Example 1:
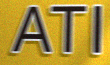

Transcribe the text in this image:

ATI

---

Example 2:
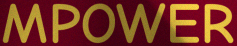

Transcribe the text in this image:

MPOWER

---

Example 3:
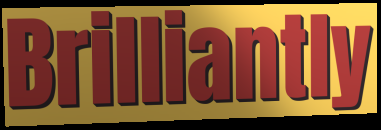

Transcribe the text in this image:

Brilliantly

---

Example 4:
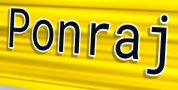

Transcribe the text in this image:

Ponraj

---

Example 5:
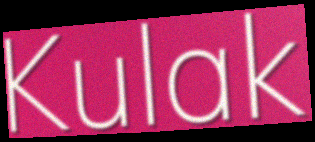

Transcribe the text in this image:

Kulak